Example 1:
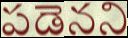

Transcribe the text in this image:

పడెనని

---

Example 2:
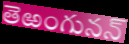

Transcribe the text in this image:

తెఱంగునన్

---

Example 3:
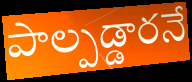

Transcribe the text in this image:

పాల్పడ్డారనే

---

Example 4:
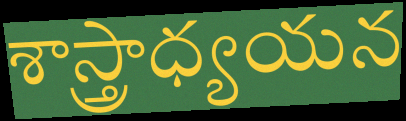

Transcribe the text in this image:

శాస్త్రాధ్యయన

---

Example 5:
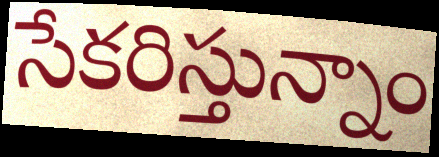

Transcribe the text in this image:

సేకరిస్తున్నాం